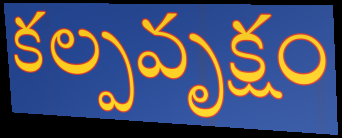
కల్పవృక్షం